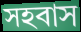
সহবাস